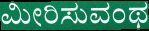
ಮೀರಿಸುವಂಥ